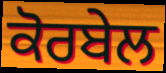
ਕੋਰਬੇਲ